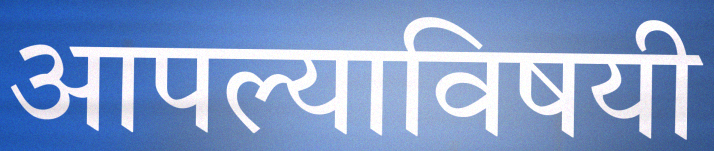
आपल्याविषयी